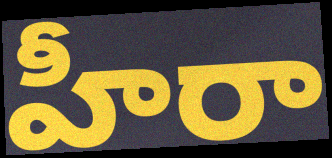
హీరా